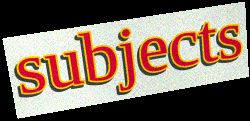
subjects